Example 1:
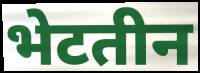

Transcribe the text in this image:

भेटतीन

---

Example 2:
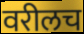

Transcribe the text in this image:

वरीलच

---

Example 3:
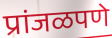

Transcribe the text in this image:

प्रांजळपणे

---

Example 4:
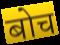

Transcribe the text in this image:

बोच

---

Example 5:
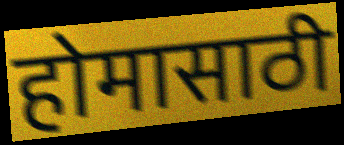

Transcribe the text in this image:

होमासाठी